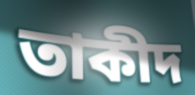
তাকীদ